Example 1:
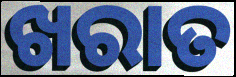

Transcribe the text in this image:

ଖରାତ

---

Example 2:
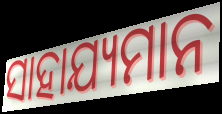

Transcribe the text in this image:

ସାହାଯ୍ୟମାନ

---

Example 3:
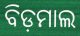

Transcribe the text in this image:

ବିଡ଼ମାଲ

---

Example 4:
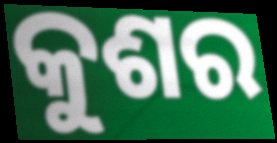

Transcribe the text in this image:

କୁଶର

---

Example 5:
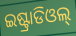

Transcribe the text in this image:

ଇଷ୍ଟ୍ରାଡିଓଲ୍